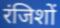
रंजिशों